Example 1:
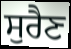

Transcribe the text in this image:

ਸੁਰੈਣ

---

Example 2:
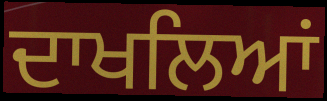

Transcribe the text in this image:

ਦਾਖਲਿਆਂ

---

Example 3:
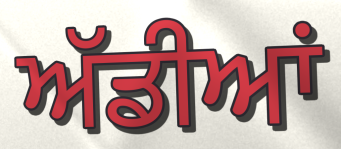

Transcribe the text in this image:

ਅੱਡੀਆਂ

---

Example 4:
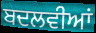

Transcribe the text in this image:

ਬਦਲਵੀਆਂ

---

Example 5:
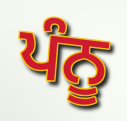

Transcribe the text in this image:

ਪੰਨੂ